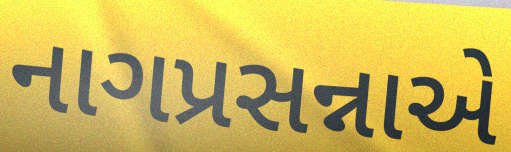
નાગપ્રસન્નાએ